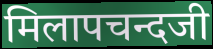
मिलापचन्दजी